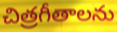
చిత్రగీతాలను